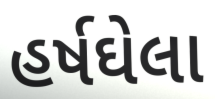
હર્ષઘેલા